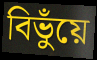
বিভুঁয়ে